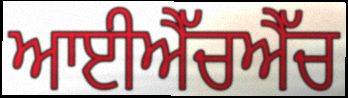
ਆਈਐੱਚਐੱਚ